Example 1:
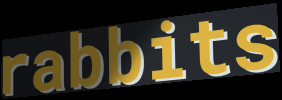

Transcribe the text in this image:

rabbits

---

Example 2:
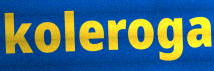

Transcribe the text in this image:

koleroga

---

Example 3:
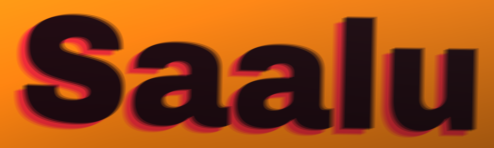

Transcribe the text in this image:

Saalu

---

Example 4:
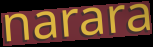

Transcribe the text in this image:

narara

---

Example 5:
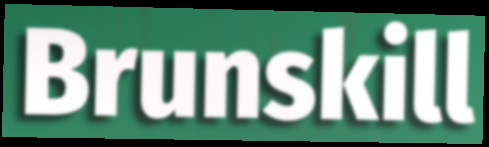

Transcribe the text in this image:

Brunskill